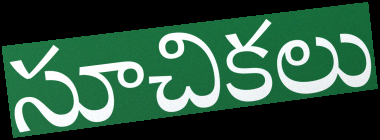
సూచికలు